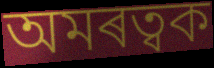
অমৰত্বক